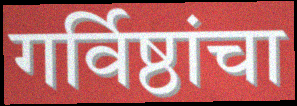
गर्विष्ठांचा